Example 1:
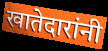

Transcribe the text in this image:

खातेदारांनी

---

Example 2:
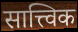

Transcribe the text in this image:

सात्त्विक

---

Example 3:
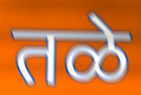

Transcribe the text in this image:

तळे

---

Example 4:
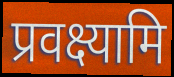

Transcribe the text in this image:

प्रवक्ष्यामि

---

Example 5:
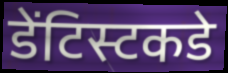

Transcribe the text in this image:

डेंटिस्टकडे